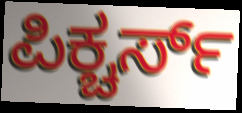
ಪಿಕ್ಚರ್ಸ್